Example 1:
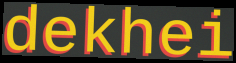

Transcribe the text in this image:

dekhei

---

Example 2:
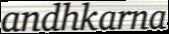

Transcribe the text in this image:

andhkarna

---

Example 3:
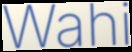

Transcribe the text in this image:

Wahi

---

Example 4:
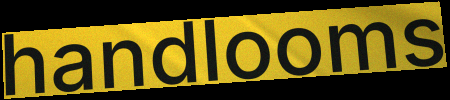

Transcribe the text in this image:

handlooms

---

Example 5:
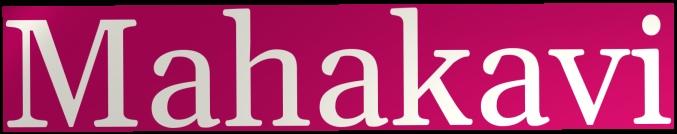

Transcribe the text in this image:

Mahakavi